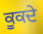
ਕੂਕਦੇ